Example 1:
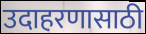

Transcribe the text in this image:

उदाहरणासाठी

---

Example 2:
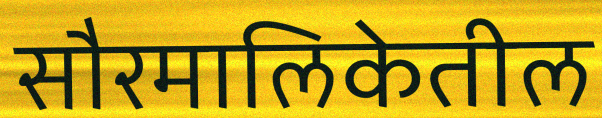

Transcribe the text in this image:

सौरमालिकेतील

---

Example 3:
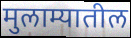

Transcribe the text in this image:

मुलाम्यातील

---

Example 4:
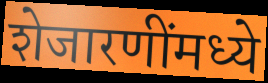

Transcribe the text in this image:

शेजारणींमध्ये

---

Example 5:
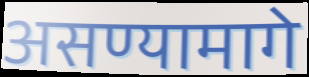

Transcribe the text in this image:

असण्यामागे